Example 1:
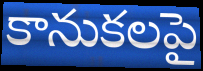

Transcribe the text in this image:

కానుకలపై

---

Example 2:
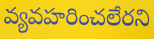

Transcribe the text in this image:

వ్యవహరించలేరని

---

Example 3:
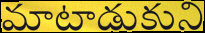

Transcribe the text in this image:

మాటాడుకుని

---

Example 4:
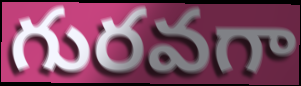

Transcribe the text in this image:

గురవగా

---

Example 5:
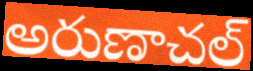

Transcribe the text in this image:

అరుణాచల్